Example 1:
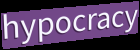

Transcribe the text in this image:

hypocracy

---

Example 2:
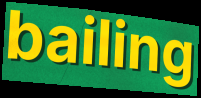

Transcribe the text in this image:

bailing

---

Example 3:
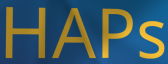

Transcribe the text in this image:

HAPs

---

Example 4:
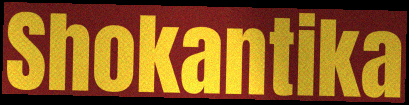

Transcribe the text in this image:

Shokantika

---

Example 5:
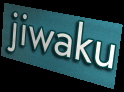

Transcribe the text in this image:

jiwaku